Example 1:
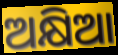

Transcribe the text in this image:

ଅକ୍ଷିଆ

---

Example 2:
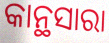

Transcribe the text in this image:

କାନ୍ଥସାରା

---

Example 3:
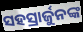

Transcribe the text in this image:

ସହସ୍ରାର୍ଜୁନଙ୍କ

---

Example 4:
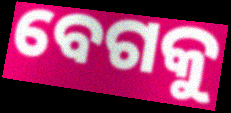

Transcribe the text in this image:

ବେଗକୁ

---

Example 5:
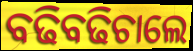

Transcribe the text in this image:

ବଢିବଢିଚାଲେ